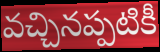
వచ్చినప్పటికీ